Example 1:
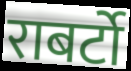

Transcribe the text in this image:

राबर्टो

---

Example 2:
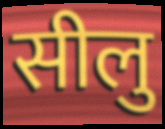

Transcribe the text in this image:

सीलु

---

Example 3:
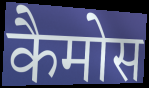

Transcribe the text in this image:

कैमोस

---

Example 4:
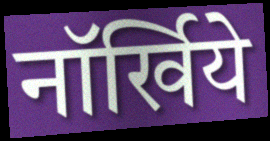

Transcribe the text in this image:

नॉर्खिये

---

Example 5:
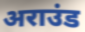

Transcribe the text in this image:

अराउंड